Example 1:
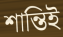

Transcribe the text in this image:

শান্তিই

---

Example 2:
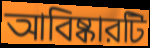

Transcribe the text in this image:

আবিষ্কারটি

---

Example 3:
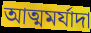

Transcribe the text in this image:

আত্মমর্যাদা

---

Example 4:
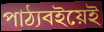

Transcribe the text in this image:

পাঠ্যবইয়েই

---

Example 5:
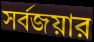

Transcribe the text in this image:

সর্বজয়ার